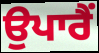
ਉਪਾਰੈਂ